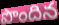
పొందిన